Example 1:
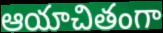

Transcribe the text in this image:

ఆయాచితంగా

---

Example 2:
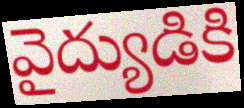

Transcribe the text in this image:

వైద్యుడికి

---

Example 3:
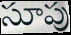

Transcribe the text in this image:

సూపు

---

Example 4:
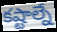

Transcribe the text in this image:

కష్టాల్నే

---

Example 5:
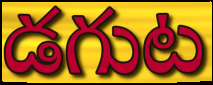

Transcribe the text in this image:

డగుట